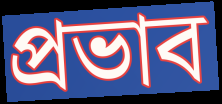
প্রভাব